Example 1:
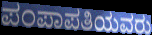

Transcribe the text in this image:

ಪಂಪಾಪತಿಯವರು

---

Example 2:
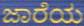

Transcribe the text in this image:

ಜಾರೆಯ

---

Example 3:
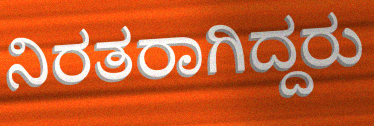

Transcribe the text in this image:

ನಿರತರಾಗಿದ್ದರು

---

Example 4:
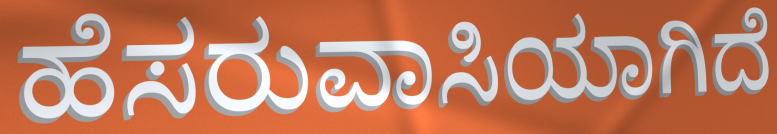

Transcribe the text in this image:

ಹೆಸರುವಾಸಿಯಾಗಿದೆ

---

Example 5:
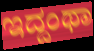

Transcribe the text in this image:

ಇದ್ದಂಥಾ